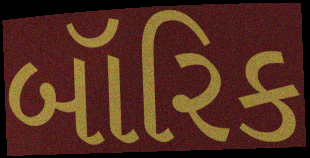
બૉરિક